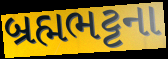
બ્રહ્મભટ્ટના